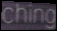
ching